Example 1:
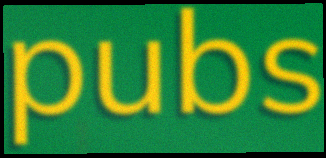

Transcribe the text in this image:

pubs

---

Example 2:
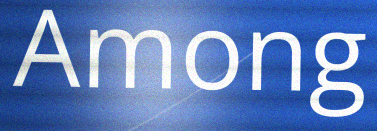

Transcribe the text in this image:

Among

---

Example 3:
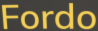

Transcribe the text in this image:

Fordo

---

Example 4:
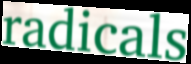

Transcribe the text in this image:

radicals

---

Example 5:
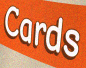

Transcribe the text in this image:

Cards